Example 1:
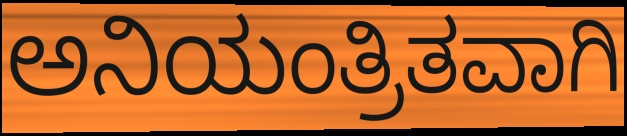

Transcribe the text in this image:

ಅನಿಯಂತ್ರಿತವಾಗಿ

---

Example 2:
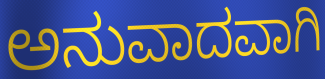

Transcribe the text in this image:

ಅನುವಾದವಾಗಿ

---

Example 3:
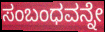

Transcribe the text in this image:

ಸಂಬಂಧವನ್ನೇ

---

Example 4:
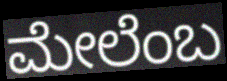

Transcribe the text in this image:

ಮೇಲೆಂಬ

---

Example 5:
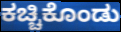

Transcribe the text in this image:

ಕಚ್ಚಿಕೊಂಡು